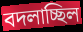
বদলাচ্ছিল